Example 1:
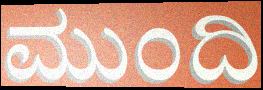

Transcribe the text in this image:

ಮುಂದಿ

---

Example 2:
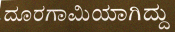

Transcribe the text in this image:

ದೂರಗಾಮಿಯಾಗಿದ್ದು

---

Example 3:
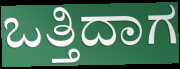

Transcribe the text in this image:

ಒತ್ತಿದಾಗ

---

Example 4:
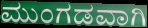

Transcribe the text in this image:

ಮುಂಗಡವಾಗಿ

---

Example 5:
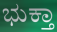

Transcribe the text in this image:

ಭುಕ್ತಾ